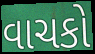
વાચકો